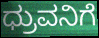
ಧ್ರುವನಿಗೆ